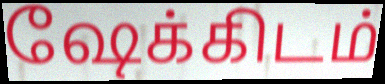
ஷேக்கிடம்